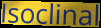
Isoclinal